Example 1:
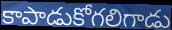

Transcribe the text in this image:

కాపాడుకోగలిగాడు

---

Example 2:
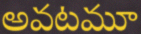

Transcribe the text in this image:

అవటమూ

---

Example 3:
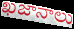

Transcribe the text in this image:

ఖజానాలు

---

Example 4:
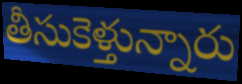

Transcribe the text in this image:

తీసుకెళ్తున్నారు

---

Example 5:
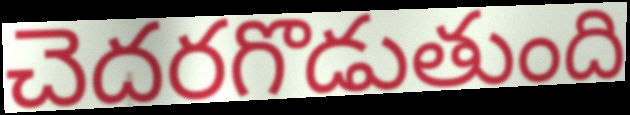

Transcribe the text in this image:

చెదరగొడుతుంది